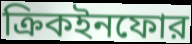
ক্রিকইনফোর